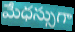
మేధస్సుగా